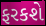
ફરકશે